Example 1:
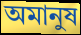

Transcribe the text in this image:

অমানুষ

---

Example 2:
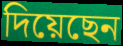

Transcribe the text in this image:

দিয়েছেন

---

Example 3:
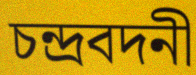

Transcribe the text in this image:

চন্দ্রবদনী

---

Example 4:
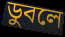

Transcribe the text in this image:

ডুবলে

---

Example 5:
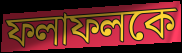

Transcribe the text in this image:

ফলাফলকে